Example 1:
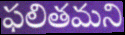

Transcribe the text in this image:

ఫలితమని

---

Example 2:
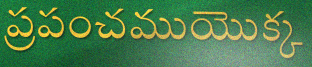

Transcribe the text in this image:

ప్రపంచముయొక్క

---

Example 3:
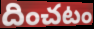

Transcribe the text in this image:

దించటం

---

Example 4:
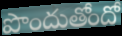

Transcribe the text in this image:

పొందుతోందో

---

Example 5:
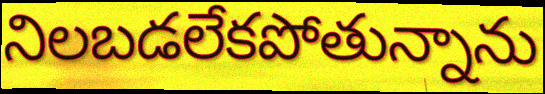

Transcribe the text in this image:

నిలబడలేకపోతున్నాను